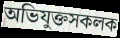
অভিযুক্তসকলক